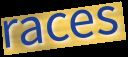
races